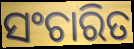
ସଂଚାରିତ